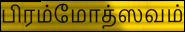
பிரம்மோத்ஸவம்